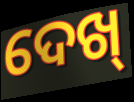
ଦେଖ୍